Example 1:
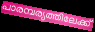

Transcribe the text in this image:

പാരമ്പര്യത്തിലേക്ക്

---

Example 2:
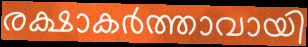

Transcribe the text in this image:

രക്ഷാകർത്താവായി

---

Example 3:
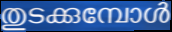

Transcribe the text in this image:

തുടക്കുമ്പോൾ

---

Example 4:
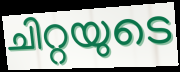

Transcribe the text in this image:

ചിറ്റയുടെ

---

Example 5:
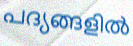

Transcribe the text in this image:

പദ്യങ്ങളിൽ